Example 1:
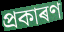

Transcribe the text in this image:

প্ৰকাৰণ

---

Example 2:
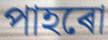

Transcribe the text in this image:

পাহৰো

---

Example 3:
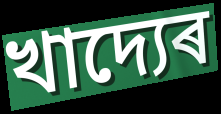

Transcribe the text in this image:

খাদ্যেৰ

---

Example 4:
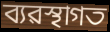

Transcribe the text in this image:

ব্যৱস্থাগত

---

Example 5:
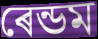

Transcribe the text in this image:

ৰেন্ডম